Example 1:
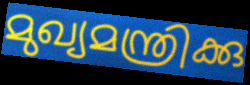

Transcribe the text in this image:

മുഖ്യമന്ത്രിക്കു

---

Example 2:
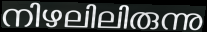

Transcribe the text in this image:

നിഴലിലിരുന്നു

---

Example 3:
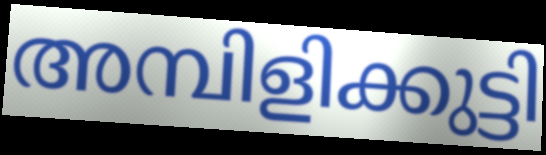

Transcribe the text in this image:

അമ്പിളിക്കുട്ടി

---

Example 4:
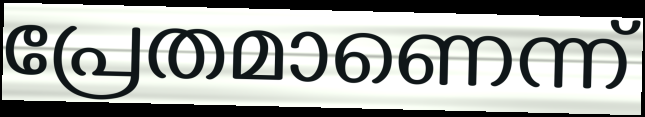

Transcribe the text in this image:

പ്രേതമാണെന്ന്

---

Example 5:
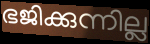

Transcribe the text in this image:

ഭജിക്കുന്നില്ല